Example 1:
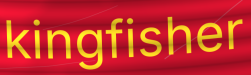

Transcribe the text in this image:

kingfisher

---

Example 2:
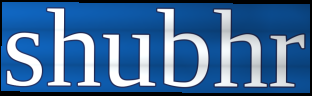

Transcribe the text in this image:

shubhr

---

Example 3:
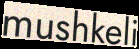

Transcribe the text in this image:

mushkeli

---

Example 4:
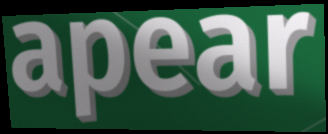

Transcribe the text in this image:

apear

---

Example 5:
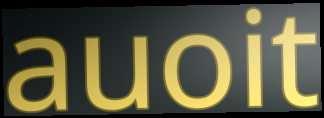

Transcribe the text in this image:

auoit